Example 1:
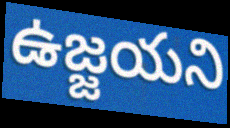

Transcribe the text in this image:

ఉజ్జయని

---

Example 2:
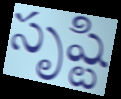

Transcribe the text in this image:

సృష్టి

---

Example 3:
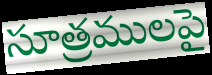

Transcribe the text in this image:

సూత్రములపై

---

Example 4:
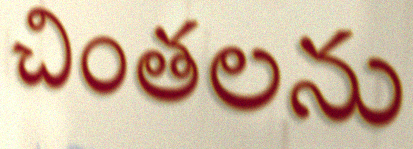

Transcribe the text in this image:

చింతలను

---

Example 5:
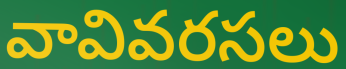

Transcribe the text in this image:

వావివరసలు